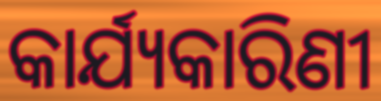
କାର୍ଯ୍ୟକାରିଣୀ